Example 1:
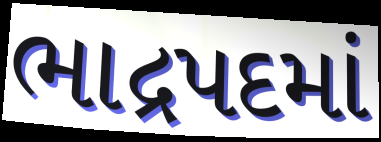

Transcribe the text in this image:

ભાદ્રપદમાં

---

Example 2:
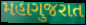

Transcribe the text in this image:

મહાગુજરાત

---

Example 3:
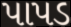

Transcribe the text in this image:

પાપડ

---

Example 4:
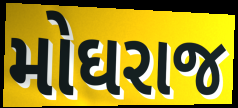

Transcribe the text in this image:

મોઘરાજ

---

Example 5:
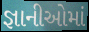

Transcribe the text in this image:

જ્ઞાનીઓમાં